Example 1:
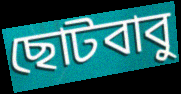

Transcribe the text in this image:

ছোটবাবু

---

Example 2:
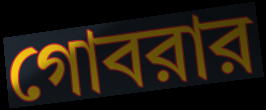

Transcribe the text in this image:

গোবরার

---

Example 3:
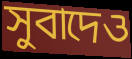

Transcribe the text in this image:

সুবাদেও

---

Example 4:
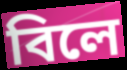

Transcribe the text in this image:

বিলে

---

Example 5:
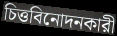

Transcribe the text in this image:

চিত্তবিনোদনকারী